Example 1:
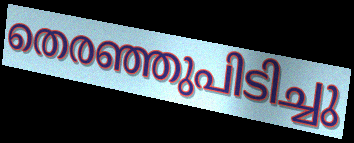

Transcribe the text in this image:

തെരഞ്ഞുപിടിച്ചു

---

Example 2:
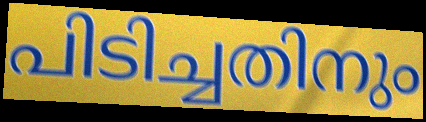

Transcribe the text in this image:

പിടിച്ചതിനും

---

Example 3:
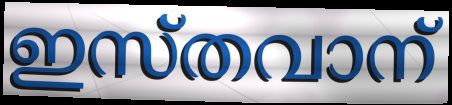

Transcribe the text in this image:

ഇസ്തവാന്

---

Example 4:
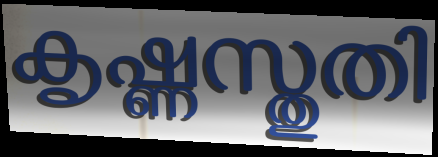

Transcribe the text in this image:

കൃഷ്ണസ്തുതി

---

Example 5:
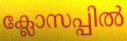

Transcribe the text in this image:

ക്ലോസപ്പിൽ